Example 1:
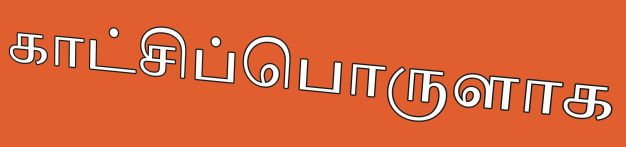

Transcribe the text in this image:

காட்சிப்பொருளாக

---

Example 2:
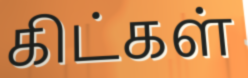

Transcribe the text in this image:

கிட்கள்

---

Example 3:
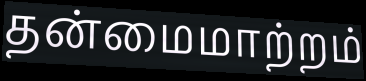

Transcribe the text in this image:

தன்மைமாற்றம்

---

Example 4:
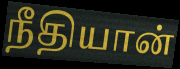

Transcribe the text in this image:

நீதியான்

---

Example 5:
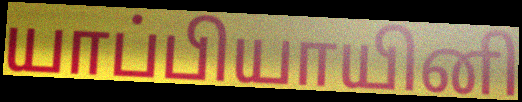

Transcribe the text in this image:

யாப்பியாயினி